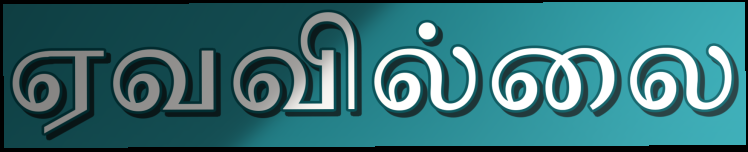
ஏவவில்லை